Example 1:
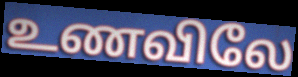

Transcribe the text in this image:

உணவிலே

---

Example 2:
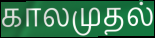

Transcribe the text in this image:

காலமுதல்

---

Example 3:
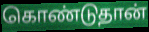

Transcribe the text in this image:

கொண்டுதான்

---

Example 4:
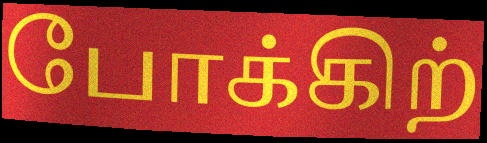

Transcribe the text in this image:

போக்கிற்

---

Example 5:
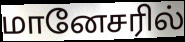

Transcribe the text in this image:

மானேசரில்